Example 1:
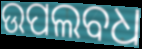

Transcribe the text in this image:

ଉପଲବଧ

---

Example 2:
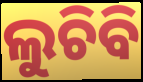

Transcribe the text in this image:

ଲୁଚିବି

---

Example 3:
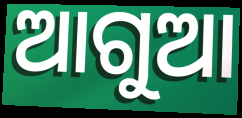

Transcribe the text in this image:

ଆଗୁଆ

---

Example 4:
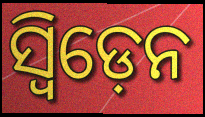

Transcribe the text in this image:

ସ୍ବିଡ଼େନ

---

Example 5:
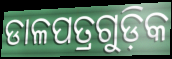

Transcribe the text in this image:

ଡାଳପତ୍ରଗୁଡ଼ିକ